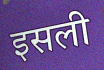
इसली